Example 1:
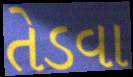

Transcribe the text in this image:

તેડવા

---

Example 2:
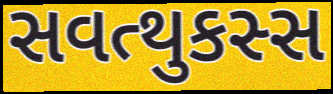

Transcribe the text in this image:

સવત્થુકસ્સ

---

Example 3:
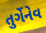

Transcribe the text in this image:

તુર્ગેનેવ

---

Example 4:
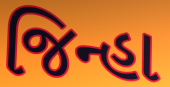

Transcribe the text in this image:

જિન્હા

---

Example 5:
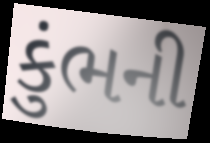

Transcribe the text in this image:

કુંભની